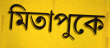
মিতাপুকে